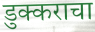
डुक्कराचा